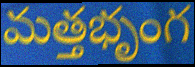
మత్తభృంగ